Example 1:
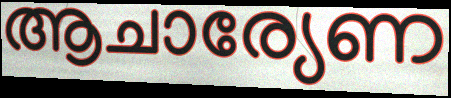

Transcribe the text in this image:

ആചാര്യേണ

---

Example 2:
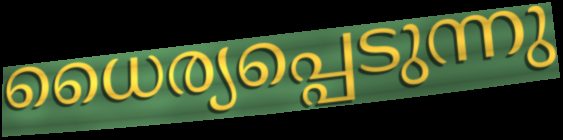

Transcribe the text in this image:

ധൈര്യപ്പെടുന്നു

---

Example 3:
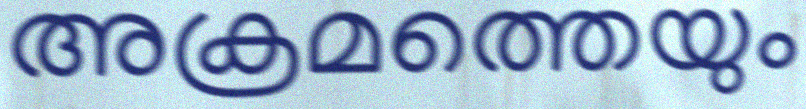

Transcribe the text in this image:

അക്രമത്തെയും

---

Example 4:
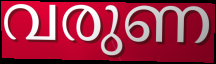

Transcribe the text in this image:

വരുണ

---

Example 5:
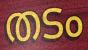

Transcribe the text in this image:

തടം